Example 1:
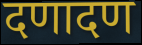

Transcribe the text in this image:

दणादण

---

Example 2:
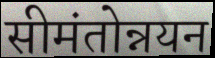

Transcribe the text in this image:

सीमंतोन्नयन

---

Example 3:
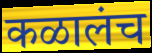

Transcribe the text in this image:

कळालंच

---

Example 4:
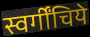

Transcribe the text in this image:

स्वर्गींचिये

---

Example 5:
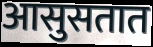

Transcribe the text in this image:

आसुसतात